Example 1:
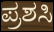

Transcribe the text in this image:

ಪ್ರಶಸಿ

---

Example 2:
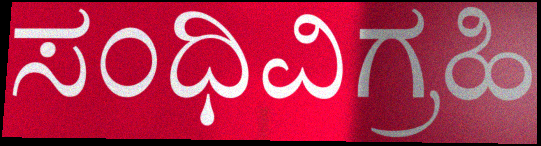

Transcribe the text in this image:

ಸಂಧಿವಿಗ್ರಹಿ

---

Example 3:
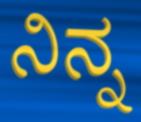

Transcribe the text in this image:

ನಿನ್ನ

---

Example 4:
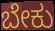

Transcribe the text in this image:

ಬೇಕು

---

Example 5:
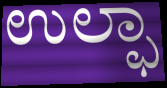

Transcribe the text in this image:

ಉಲ್ಫಾ